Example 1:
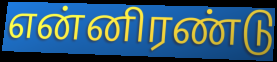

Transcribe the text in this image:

என்னிரண்டு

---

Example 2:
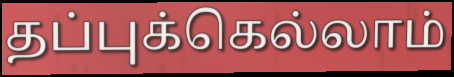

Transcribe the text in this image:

தப்புக்கெல்லாம்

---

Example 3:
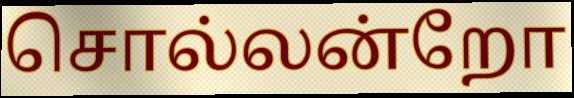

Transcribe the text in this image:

சொல்லன்றோ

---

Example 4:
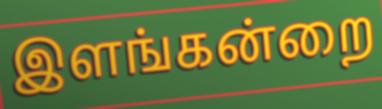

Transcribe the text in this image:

இளங்கன்றை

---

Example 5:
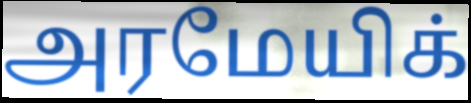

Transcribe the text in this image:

அரமேயிக்